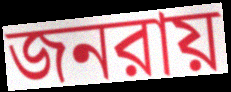
জনরায়